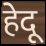
हेदू